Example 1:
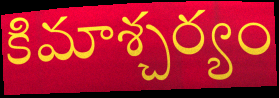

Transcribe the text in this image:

కిమాశ్చర్యం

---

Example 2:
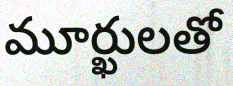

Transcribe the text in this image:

మూర్ఖులతో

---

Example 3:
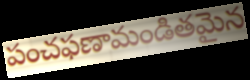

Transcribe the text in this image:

పంచఫణామండితమైన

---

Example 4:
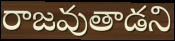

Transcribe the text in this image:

రాజవుతాడని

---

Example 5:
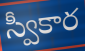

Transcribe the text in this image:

స్వీకార